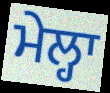
ਮੇਲ੍ਹਾ